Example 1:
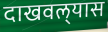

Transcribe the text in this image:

दाखवल्यास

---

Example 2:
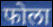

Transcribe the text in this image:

फोला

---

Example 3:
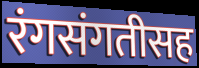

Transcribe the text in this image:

रंगसंगतीसह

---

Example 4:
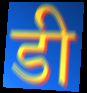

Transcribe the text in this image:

डी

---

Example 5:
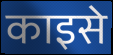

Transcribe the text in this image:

काइसे